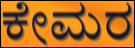
ಕೇಮರ